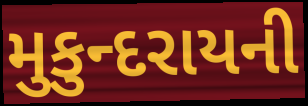
મુકુન્દરાયની